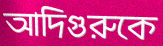
আদিগুরুকে